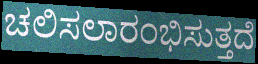
ಚಲಿಸಲಾರಂಭಿಸುತ್ತದೆ